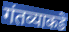
गंतव्याकडे